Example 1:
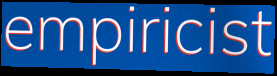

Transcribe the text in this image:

empiricist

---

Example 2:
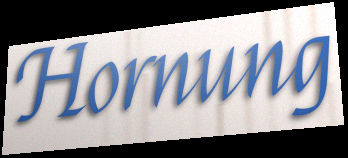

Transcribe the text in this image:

Hornung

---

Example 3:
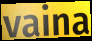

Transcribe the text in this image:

vaina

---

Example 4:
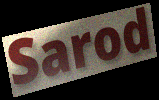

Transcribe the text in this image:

Sarod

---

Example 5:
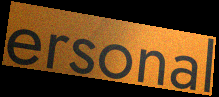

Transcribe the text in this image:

ersonal